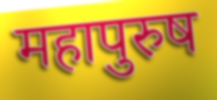
महापुरुष